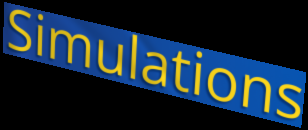
Simulations